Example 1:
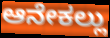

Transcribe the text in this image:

ಆನೇಕಲ್ಲು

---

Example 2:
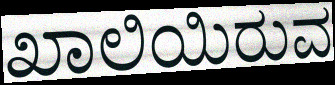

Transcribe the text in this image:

ಖಾಲಿಯಿರುವ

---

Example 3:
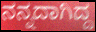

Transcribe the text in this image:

ನನ್ನದಾಗಿದ್ದ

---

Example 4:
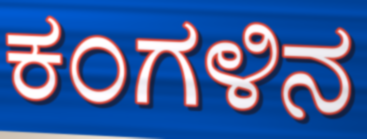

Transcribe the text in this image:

ಕಂಗಳಿನ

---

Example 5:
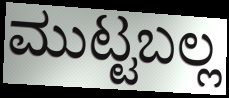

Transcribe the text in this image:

ಮುಟ್ಟಬಲ್ಲ